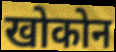
खोकोन